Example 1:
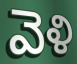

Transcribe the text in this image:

వెళి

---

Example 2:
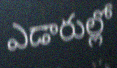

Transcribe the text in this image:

ఎడారుల్లో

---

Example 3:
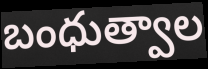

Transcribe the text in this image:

బంధుత్వాల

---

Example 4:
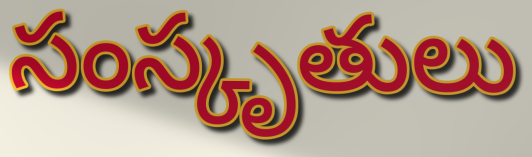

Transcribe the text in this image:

సంస్కృతులు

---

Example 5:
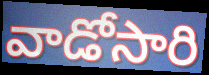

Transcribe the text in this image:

వాడోసారి